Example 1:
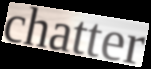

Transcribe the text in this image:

chatter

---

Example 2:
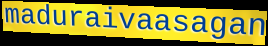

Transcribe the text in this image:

maduraivaasagan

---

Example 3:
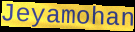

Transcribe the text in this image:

Jeyamohan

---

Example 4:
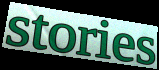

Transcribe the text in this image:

stories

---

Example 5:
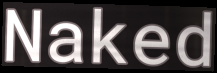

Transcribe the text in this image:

Naked